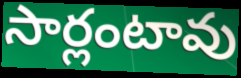
సార్లంటావు